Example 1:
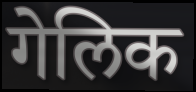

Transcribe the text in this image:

गेलिक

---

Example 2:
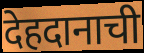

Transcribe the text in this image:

देहदानाची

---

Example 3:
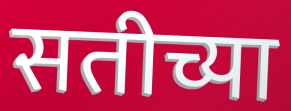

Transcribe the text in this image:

सतीच्या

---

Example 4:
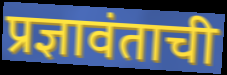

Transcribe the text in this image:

प्रज्ञावंताची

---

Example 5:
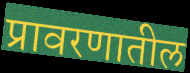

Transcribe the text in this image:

प्रावरणातील